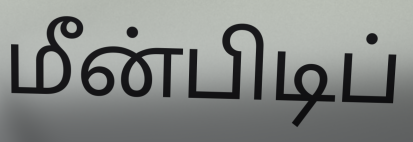
மீன்பிடிப்